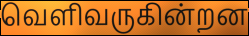
வெளிவருகின்றன